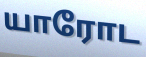
யாரோட